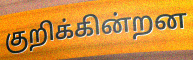
குறிக்கின்றன